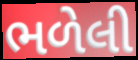
ભળેલી